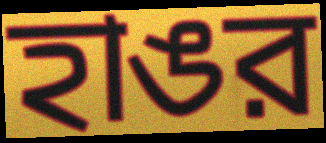
হাঙর